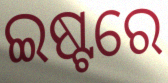
ଇଷ୍ଟରେ